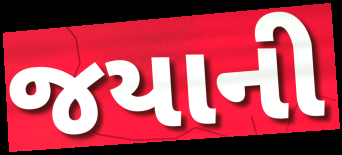
જયાની